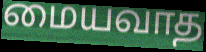
மையவாத